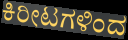
ಕಿರೀಟಗಳಿಂದ